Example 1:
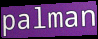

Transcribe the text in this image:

palman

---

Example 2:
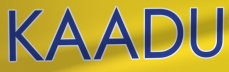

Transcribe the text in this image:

KAADU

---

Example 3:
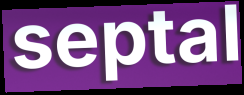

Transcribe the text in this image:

septal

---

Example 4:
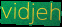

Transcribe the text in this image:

vidjeh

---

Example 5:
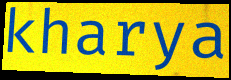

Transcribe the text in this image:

kharya